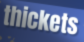
thickets